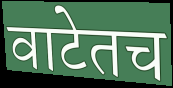
वाटेतच